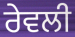
ਰੇਵਲੀ